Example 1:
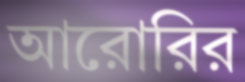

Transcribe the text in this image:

আরোরির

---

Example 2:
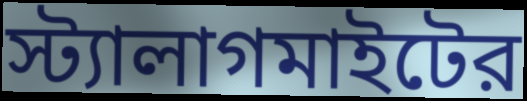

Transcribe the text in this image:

স্ট্যালাগমাইটের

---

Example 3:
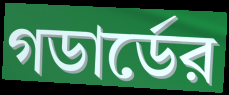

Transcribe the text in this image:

গডার্ডের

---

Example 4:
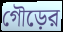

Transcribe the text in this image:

গৌড়ের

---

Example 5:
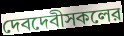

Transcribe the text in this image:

দেবদেবীসকলের